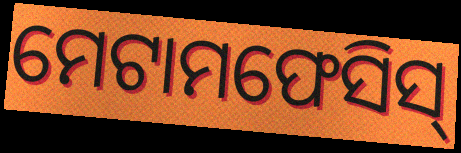
ମେଟାମଫେସିସ୍